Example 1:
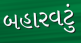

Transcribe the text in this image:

બહારવટું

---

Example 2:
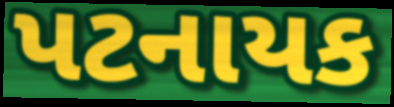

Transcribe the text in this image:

પટનાયક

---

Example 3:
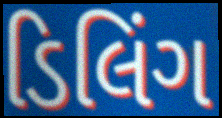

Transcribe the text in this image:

ડિલિંગ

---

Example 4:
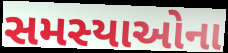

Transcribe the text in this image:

સમસ્યાઓના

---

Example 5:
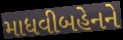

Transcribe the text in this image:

માધવીબહેનને